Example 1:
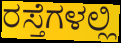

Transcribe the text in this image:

ರಸ್ತೆಗಳಲ್ಲಿ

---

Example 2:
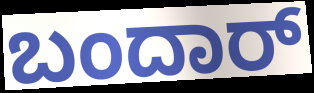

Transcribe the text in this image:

ಬಂದಾರ್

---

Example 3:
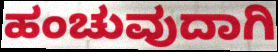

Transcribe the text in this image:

ಹಂಚುವುದಾಗಿ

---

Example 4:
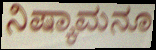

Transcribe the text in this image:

ನಿಷ್ಕಾಮನೂ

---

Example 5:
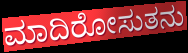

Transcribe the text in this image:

ಮಾದಿರೋಸುತನು